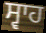
ਸ੍ਵਾਹ